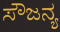
ಸೌಜನ್ಯ